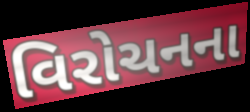
વિરોચનના